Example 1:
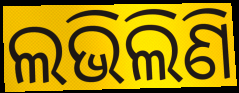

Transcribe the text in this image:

ଲଭିଲିଣି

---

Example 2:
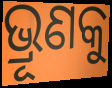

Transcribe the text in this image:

ଭ୍ରୂଣକୁ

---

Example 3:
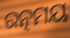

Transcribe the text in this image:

ରତ୍ନମୟ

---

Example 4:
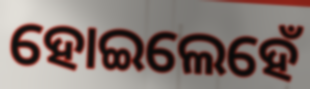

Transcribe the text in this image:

ହୋଇଲେହେଁ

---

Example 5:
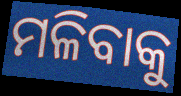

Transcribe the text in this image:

ମଳିବାକୁ